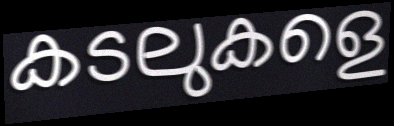
കടലുകളെ